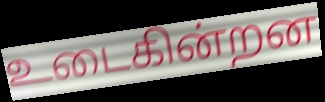
உடைகின்றன